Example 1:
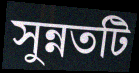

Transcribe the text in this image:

সুন্নতটি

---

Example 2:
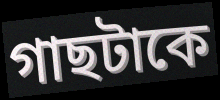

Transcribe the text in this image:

গাছটাকে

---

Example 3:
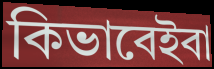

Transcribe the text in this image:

কিভাবেইবা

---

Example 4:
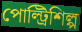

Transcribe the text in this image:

পোল্ট্রিশিল্প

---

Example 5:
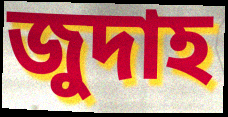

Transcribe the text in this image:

জুদাহ